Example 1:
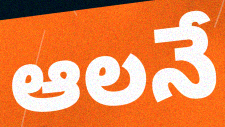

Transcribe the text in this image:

ఆలనే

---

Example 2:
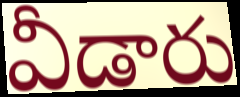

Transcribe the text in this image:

వీడారు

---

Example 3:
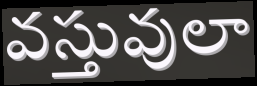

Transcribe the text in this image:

వస్తువులా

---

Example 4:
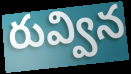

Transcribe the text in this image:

రువ్విన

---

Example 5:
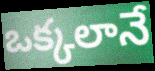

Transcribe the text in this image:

ఒక్కలానే